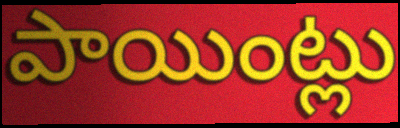
పాయింట్లు